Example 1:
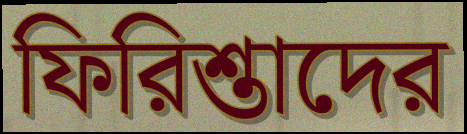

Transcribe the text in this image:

ফিরিশ্তাদের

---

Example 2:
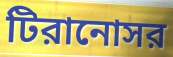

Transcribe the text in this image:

টিরানোসর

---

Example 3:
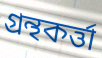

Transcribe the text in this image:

গ্রন্থকর্ত্তা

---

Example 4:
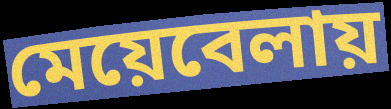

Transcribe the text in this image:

মেয়েবেলায়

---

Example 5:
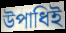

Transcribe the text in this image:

উপাধিই